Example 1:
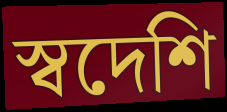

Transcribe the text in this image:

স্বদেশি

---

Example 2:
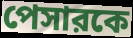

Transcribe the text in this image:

পেসারকে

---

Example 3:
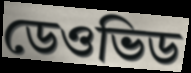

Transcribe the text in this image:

ডেওভিড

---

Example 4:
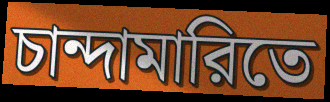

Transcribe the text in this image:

চান্দামারিতে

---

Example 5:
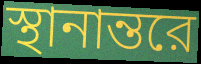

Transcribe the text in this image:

স্থানান্তরে